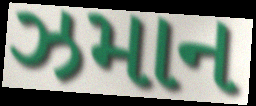
ઝમાન